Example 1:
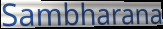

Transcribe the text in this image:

Sambharana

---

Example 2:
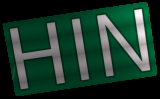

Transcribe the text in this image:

HIN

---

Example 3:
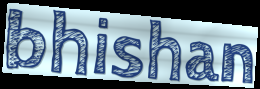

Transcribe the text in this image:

bhishan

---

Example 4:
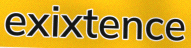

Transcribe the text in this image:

exixtence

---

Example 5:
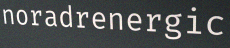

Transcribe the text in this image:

noradrenergic